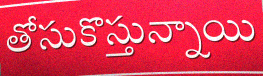
తోసుకొస్తున్నాయి